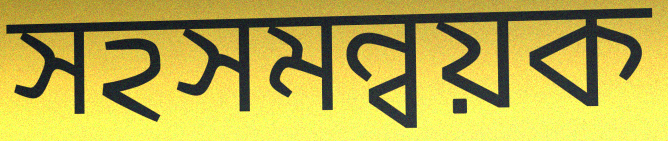
সহসমন্বয়ক